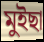
মুইছা